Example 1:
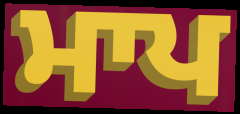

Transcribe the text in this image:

ਮਾਪ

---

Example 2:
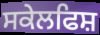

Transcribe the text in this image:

ਸਕੇਲਫਿਸ਼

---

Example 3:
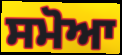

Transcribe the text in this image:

ਸਮੋਆ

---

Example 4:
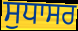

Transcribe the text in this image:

ਸੁਧਾਸਰ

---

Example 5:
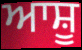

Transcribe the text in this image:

ਆਸ਼ੂ